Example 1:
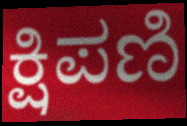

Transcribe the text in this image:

ಕ್ಷಿಪಣಿ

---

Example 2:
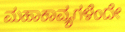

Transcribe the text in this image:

ಮಹಾಕಾವ್ಯಗಳೆಂದೇ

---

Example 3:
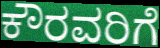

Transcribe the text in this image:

ಕೌರವರಿಗೆ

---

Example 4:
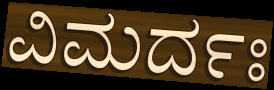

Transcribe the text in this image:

ವಿಮರ್ದಃ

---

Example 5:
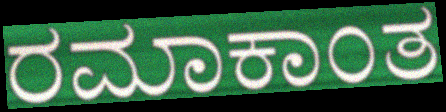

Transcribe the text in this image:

ರಮಾಕಾಂತ